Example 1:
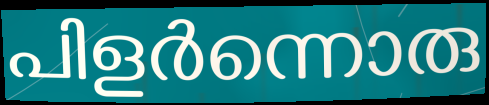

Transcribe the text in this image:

പിളർന്നൊരു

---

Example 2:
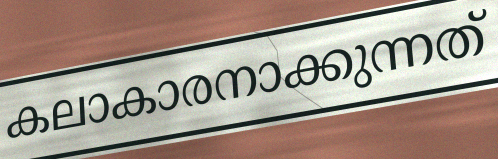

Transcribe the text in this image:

കലാകാരനാക്കുന്നത്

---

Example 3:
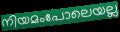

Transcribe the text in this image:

നിയമംപോലെയല്ല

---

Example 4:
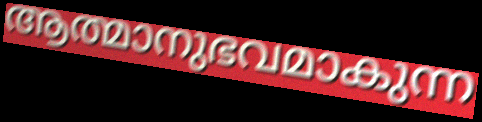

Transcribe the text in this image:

ആത്മാനുഭവമാകുന്ന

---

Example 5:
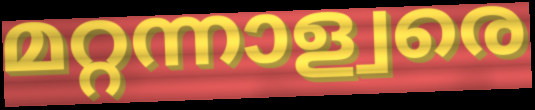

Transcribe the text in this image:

മറ്റന്നാള്വരെ